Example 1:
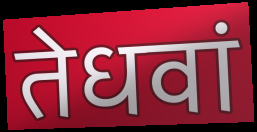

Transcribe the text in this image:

तेधवां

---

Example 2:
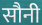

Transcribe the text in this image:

सौनी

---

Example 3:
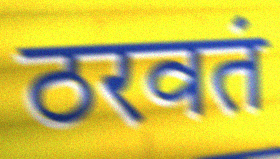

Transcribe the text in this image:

ठरवतं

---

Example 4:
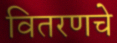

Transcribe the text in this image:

वितरणचे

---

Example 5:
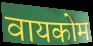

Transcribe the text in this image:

वायकोम